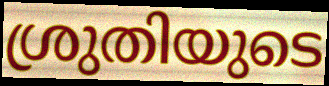
ശ്രുതിയുടെ